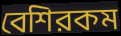
বেশিরকম